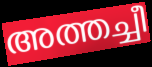
അത്തച്ചീ